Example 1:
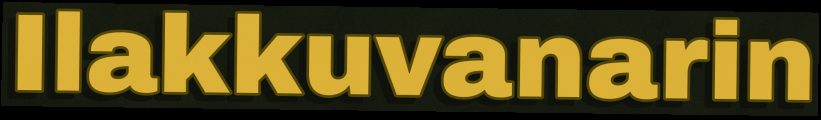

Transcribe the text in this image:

Ilakkuvanarin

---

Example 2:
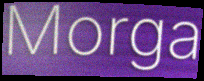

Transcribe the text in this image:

Morga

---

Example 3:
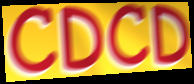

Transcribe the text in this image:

CDCD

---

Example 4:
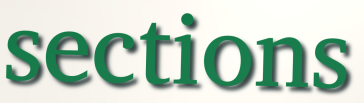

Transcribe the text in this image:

sections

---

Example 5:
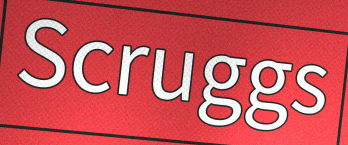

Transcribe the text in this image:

Scruggs